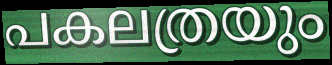
പകലത്രയും